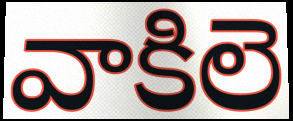
వాకిలె